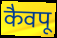
कैवपू